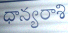
ధాన్యరాశి